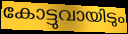
കോട്ടുവായിടും